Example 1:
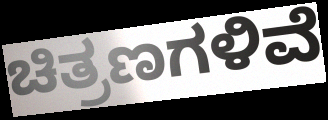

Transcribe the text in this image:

ಚಿತ್ರಣಗಳಿವೆ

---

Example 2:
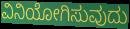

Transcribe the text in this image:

ವಿನಿಯೋಗಿಸುವುದು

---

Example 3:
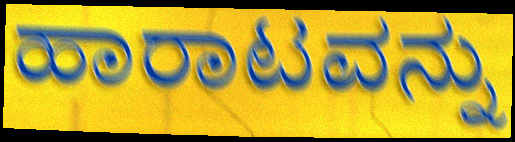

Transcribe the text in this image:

ಹಾರಾಟವನ್ನು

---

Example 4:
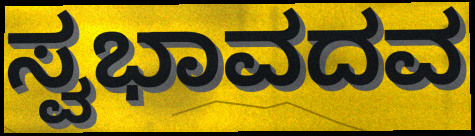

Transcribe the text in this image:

ಸ್ವಭಾವದವ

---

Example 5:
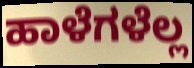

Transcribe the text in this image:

ಹಾಳೆಗಳೆಲ್ಲ